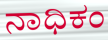
ನಾಧಿಕಂ